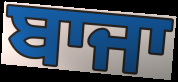
ਬਾਜਾ